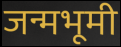
जन्मभूमी